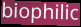
biophilic